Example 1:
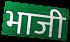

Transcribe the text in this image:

भाजी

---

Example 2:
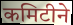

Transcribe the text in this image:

कमिटीने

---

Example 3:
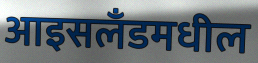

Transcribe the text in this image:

आइसलँडमधील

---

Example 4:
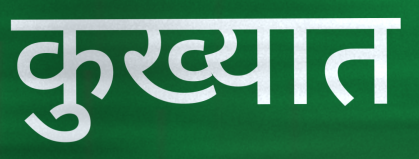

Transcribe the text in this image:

कुख्यात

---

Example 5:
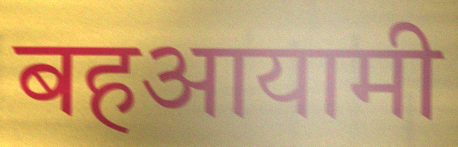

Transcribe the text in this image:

बहआयामी